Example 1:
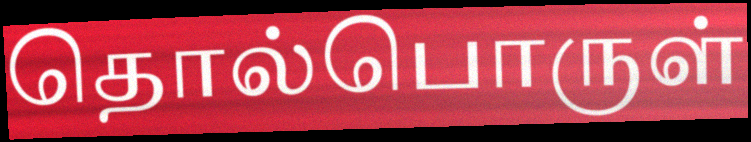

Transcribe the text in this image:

தொல்பொருள்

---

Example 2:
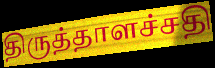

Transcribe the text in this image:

திருத்தாளச்சதி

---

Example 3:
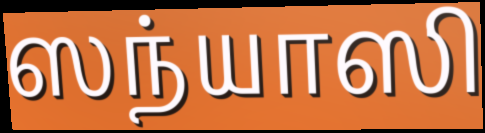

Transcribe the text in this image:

ஸந்யாஸி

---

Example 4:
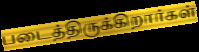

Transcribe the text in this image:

படைத்திருக்கிறார்கள்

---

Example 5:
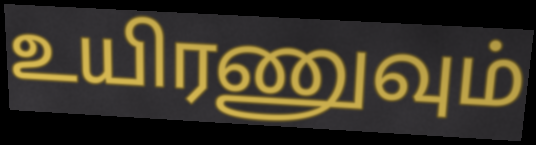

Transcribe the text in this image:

உயிரணுவும்